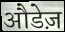
औडेज़